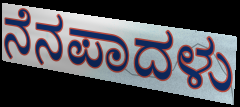
ನೆನಪಾದಳು